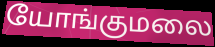
யோங்குமலை